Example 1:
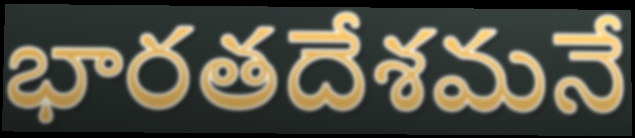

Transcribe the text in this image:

భారతదేశమనే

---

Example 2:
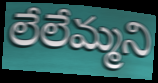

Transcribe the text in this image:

లేలేమ్మని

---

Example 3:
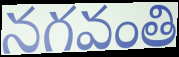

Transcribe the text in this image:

నగవంతి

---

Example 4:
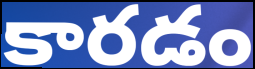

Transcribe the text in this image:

కారడం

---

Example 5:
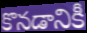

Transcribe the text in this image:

కొనడానికీ